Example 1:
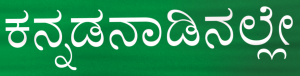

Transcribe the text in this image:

ಕನ್ನಡನಾಡಿನಲ್ಲೇ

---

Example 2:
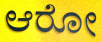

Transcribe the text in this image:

ಆರೋ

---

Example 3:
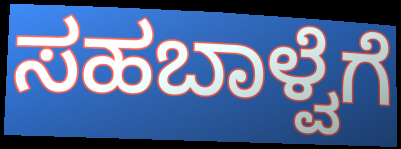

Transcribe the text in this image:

ಸಹಬಾಳ್ವೆಗೆ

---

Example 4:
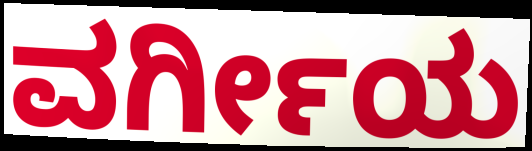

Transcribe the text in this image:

ವರ್ಗೀಯ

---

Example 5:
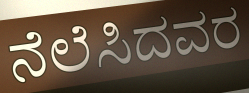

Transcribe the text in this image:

ನೆಲೆಸಿದವರ